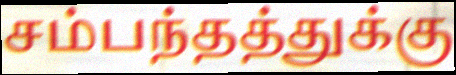
சம்பந்தத்துக்கு